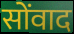
सोंवाद